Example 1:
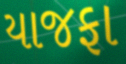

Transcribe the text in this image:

યાજફા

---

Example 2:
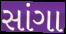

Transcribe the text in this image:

સાંગા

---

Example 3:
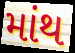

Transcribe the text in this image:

માંથ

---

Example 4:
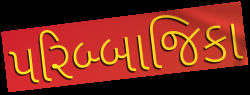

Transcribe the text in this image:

પરિબ્બાજિકા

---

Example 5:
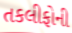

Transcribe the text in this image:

તકલીફોની